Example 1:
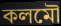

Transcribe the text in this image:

কলমৌ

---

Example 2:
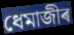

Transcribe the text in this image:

ধেমাজীৰ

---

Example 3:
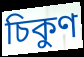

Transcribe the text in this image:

চিকুণ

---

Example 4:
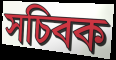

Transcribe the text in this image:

সচিবক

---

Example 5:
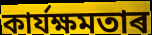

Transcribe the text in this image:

কাৰ্যক্ষমতাৰ